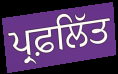
ਪ੍ਰਫ਼ਲਿੱਤ